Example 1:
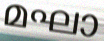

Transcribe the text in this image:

മഘാ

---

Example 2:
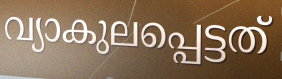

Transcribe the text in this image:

വ്യാകുലപ്പെട്ടത്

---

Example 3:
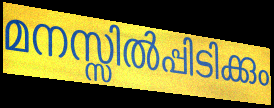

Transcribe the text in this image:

മനസ്സിൽപ്പിടിക്കും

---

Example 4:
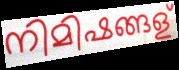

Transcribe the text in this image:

നിമിഷങ്ങള്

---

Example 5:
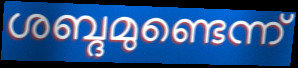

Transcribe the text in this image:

ശബ്ദമുണ്ടെന്ന്